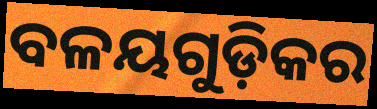
ବଳୟଗୁଡ଼ିକର